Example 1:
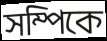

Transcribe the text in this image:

সম্পিকে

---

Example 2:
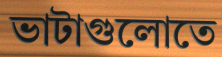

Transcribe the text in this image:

ভাটাগুলোতে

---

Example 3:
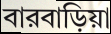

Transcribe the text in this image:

বারবাড়িয়া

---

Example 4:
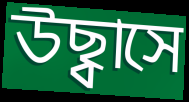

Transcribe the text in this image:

উছ্বাসে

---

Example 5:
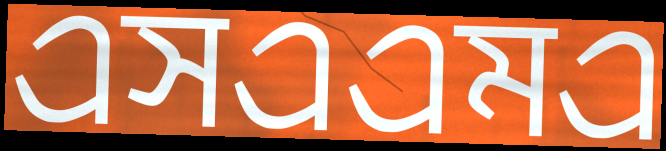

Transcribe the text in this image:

এসএএমএ